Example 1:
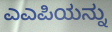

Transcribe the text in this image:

ಎಎಪಿಯನ್ನು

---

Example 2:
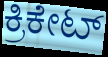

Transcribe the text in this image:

ಕ್ರಿಕೇಟ್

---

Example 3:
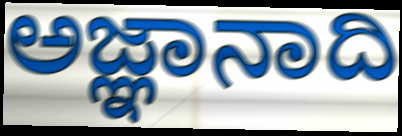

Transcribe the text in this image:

ಅಜ್ಞಾನಾದಿ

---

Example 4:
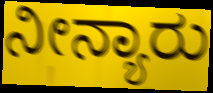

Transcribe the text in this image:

ನೀನ್ಯಾರು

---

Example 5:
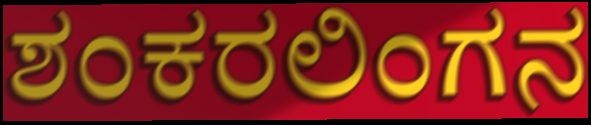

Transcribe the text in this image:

ಶಂಕರಲಿಂಗನ